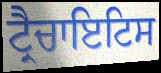
ਟ੍ਰੈਚਾਇਟਿਸ